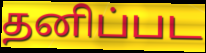
தனிப்பட